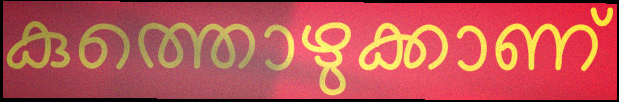
കുത്തൊഴുക്കാണ്